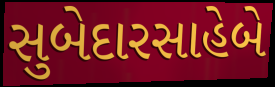
સુબેદારસાહેબે